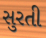
સુરતી